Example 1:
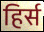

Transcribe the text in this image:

हिर्स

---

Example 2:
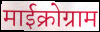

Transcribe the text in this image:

माईक्रोग्राम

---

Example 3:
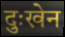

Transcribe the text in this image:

दुःखेन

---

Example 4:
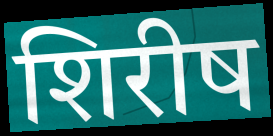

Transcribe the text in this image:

शिरीष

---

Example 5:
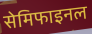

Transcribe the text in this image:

सेमिफाइनल